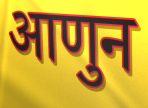
आणुन